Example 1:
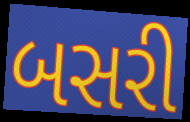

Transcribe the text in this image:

બસરી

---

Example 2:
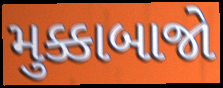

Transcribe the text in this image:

મુક્કાબાજો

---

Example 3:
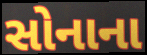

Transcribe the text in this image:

સોનાના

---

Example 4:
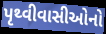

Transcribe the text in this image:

પૃથ્વીવાસીઓનો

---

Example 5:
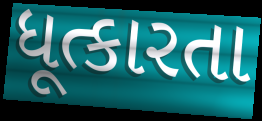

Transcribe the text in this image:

ધૂત્કારતા